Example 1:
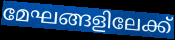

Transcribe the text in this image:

മേഘങ്ങളിലേക്ക്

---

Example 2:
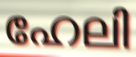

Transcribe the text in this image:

ഹേലി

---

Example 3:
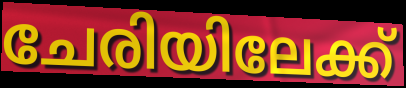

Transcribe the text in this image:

ചേരിയിലേക്ക്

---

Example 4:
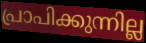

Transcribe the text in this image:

പ്രാപിക്കുന്നില്ല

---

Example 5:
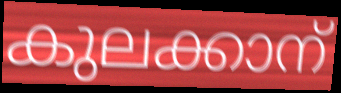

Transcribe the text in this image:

കുലക്കാന്